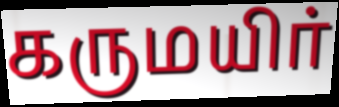
கருமயிர்